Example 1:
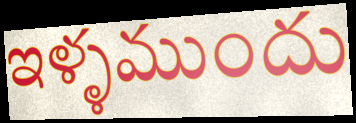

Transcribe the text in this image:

ఇళ్ళముందు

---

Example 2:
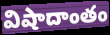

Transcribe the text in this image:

విషాదాంతం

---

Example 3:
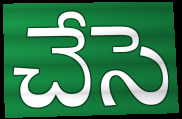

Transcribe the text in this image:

చేసె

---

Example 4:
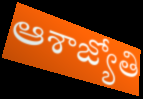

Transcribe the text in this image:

ఆశాజ్యోతి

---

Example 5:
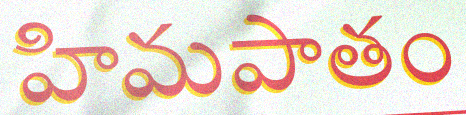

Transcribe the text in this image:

హిమపాతం